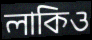
লাকিও